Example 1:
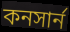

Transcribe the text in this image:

কনসার্ন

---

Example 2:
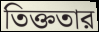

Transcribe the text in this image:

তিক্ততার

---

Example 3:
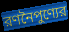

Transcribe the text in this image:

রণনৈপুণ্যের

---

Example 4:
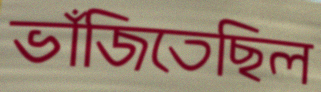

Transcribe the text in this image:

ভাঁজিতেছিল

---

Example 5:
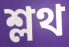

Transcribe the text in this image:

শ্লথ